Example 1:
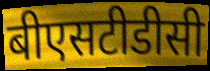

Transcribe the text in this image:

बीएसटीडीसी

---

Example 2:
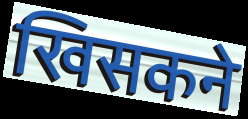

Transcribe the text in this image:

खिसकने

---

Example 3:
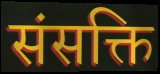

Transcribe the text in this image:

संसक्ति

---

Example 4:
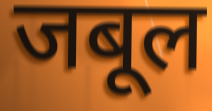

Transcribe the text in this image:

जबूल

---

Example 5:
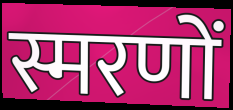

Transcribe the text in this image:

स्मरणों